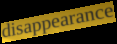
disappearance